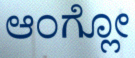
ಆಂಗ್ಲೋ